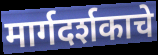
मार्गदर्शकाचे